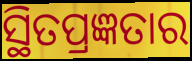
ସ୍ଥିତପ୍ରଜ୍ଞତାର